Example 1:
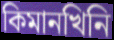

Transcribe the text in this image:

কিমানখিনি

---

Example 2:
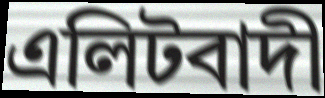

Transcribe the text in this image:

এলিটবাদী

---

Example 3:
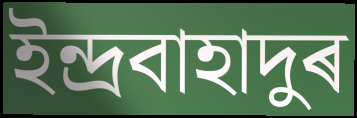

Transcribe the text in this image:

ইন্দ্ৰবাহাদুৰ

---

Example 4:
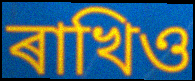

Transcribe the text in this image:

ৰাখিও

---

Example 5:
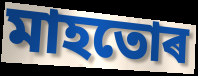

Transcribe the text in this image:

মাহতোৰ